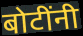
बोटींनी